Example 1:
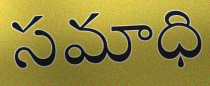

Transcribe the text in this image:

సమాధి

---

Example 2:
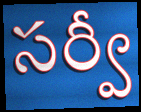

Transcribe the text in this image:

సర్వీ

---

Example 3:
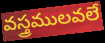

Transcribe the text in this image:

వస్త్రములవలే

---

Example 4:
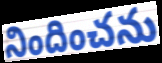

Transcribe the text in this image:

నిందించను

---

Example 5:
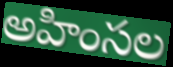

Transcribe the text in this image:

అహింసల